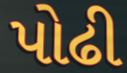
પોઢી